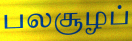
பலசூழப்